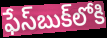
ఫేస్‌బుక్‌లోకి